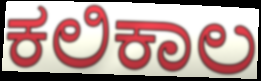
ಕಲಿಕಾಲ